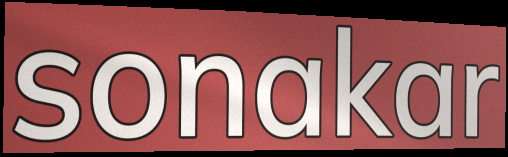
sonakar